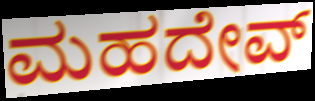
ಮಹದೇವ್